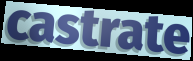
castrate